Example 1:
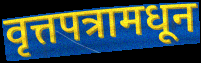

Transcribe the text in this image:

वृत्तपत्रामधून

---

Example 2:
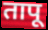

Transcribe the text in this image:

तापू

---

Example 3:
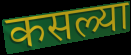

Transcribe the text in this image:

कसल्या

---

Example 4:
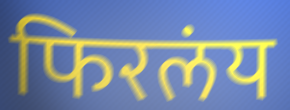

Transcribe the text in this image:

फिरलंय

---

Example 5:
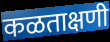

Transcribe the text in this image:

कळताक्षणी